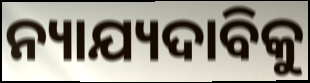
ନ୍ୟାଯ୍ୟଦାବିକୁ